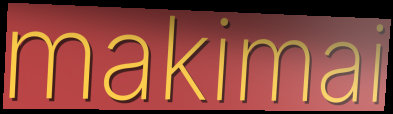
makimai